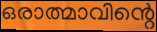
ഒരാത്മാവിന്റെ